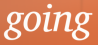
going